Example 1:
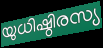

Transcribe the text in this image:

യുധിഷ്ഠിരസ്യ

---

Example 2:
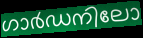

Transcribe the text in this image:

ഗാർഡനിലോ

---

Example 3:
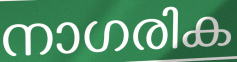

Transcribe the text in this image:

നാഗരിക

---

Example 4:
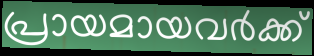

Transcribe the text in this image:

പ്രായമായവർക്ക്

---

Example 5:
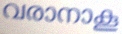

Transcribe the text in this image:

വരാനാകൂ